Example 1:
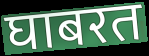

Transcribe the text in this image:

घाबरत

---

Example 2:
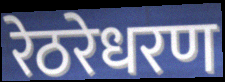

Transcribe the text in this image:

रेठरेधरण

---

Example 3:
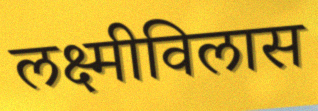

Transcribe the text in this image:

लक्ष्मीविलास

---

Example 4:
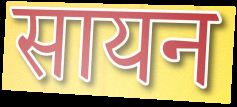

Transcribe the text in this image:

सायन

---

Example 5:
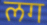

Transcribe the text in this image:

लग